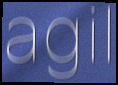
agil